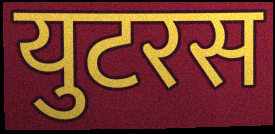
युटरस